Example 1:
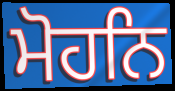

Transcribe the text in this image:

ਮੋਹਨਿ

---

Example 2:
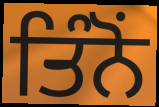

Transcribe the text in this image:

ਤਿੰਨੋਂ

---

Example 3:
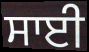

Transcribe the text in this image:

ਸਾਈ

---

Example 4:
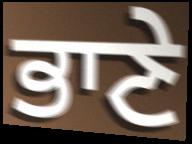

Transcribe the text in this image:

ਭਾਣੇ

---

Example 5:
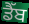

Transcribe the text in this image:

ਡੈੱਬ